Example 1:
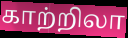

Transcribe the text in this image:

காற்றிலா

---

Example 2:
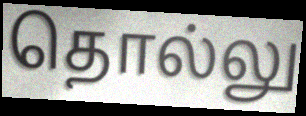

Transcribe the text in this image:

தொல்லு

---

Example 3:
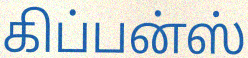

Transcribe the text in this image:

கிப்பன்ஸ்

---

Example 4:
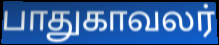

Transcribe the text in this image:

பாதுகாவலர்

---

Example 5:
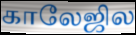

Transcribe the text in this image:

காலேஜில